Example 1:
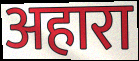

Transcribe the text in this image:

अहारा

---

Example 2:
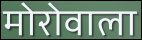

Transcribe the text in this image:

मोरोवाला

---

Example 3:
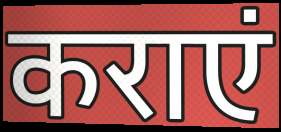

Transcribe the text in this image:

कराएं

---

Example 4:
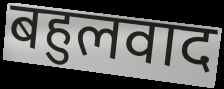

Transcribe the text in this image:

बहुलवाद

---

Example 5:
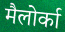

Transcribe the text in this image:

मैलोर्का